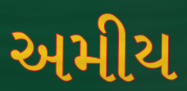
અમીય